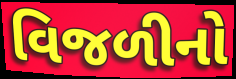
વિજળીનો